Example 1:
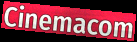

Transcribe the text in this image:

Cinemacom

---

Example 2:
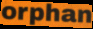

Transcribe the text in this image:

orphan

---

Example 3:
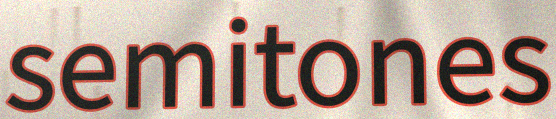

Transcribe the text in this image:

semitones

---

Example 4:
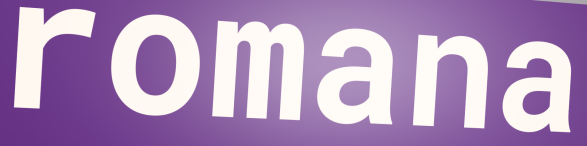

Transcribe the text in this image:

romana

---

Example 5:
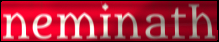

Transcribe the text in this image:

neminath